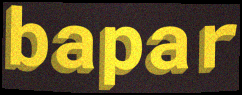
bapar